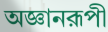
অজ্ঞানরূপী